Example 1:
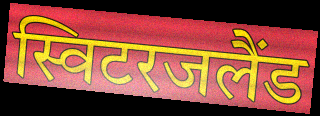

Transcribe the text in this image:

स्विटरजलैंड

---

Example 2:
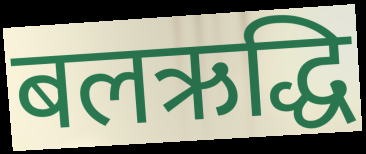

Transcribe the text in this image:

बलऋद्धि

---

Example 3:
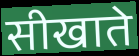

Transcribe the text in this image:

सीखाते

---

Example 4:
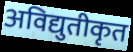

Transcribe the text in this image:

अविद्युतीकृत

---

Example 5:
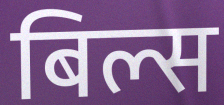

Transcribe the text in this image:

बिल्स